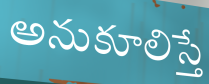
అనుకూలిస్తే